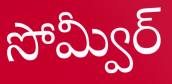
సోమ్వీర్